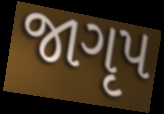
જાગૃપ